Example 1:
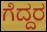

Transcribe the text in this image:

ಗೆದ್ದರ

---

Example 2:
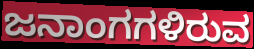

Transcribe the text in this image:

ಜನಾಂಗಗಳಿರುವ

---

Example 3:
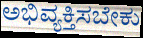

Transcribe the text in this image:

ಅಭಿವ್ಯಕ್ತಿಸಬೇಕು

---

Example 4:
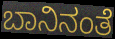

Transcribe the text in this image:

ಬಾನಿನಂತೆ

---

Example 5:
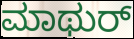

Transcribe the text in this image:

ಮಾಥುರ್